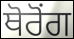
ਥੋਰੋਂਗ